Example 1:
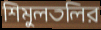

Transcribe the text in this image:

শিমুলতলির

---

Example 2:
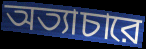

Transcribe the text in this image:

অত্যাচারে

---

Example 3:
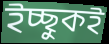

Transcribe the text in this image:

ইচ্ছুকই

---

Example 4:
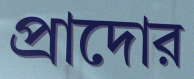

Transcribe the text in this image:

প্রাদোর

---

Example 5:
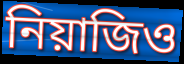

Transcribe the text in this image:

নিয়াজিও